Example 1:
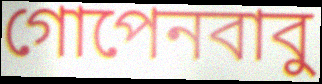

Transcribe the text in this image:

গোপেনবাবু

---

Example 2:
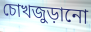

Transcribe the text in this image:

চোখজুড়ানো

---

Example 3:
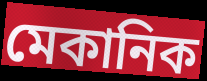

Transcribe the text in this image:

মেকানিক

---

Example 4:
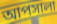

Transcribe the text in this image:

আপসালা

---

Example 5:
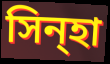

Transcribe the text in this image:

সিন্হা